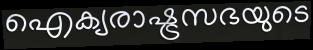
ഐക്യരാഷ്ട്രസഭയുടെ